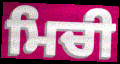
ਮਿਚੀ